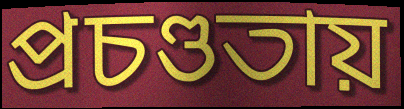
প্রচণ্ডতায়